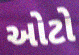
ઓટો